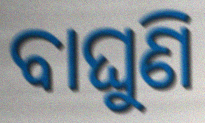
ବାଘୁଣି